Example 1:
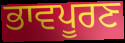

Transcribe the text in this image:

ਭਾਵਪੂਰਣ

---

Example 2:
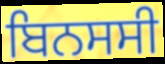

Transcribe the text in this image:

ਬਿਨਸਸੀ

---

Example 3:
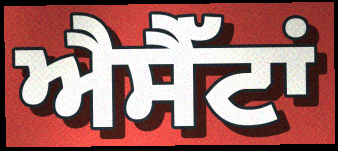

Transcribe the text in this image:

ਐਸੈੱਟਾਂ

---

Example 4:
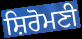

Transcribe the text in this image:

ਸ਼ਿਰੋਮਣੀ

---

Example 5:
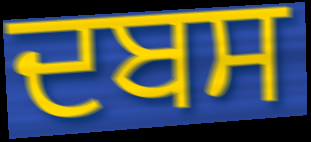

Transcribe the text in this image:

ਦਬਸ